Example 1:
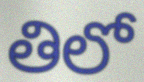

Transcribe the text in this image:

తిలో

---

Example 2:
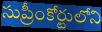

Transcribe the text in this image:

సుప్రీంకోర్టులోని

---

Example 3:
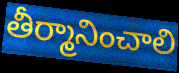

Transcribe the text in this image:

తీర్మానించాలి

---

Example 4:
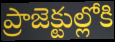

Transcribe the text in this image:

ప్రాజెక్టుల్లోకి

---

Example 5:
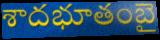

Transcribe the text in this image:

శాదభూతంబై